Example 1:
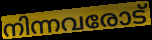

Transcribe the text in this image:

നിന്നവരോട്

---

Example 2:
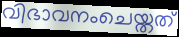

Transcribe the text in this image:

വിഭാവനംചെയ്തത്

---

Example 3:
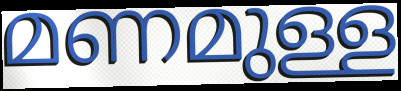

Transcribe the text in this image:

മണമുള്ള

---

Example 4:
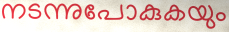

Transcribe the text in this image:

നടന്നുപോകുകയും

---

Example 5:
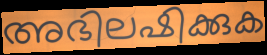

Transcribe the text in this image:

അഭിലഷിക്കുക